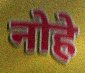
नोहे